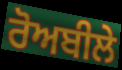
ਰੋਅਬੀਲੇ